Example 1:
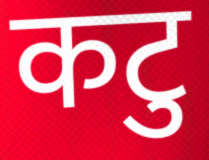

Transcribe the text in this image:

कटु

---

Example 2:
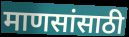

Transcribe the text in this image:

माणसांसाठी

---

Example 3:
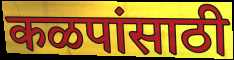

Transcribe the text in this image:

कळपांसाठी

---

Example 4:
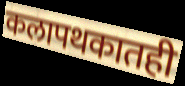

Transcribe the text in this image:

कलापथकातही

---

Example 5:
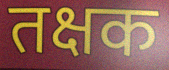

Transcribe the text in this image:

तक्षक